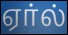
ஏர்ல்